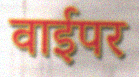
वाईपर